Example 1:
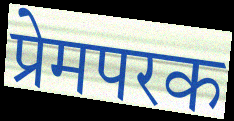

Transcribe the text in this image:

प्रेमपरक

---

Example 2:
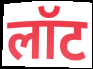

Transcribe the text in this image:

लॉट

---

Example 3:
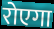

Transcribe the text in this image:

रोएगा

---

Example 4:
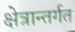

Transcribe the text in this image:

क्षेत्रान्तर्गत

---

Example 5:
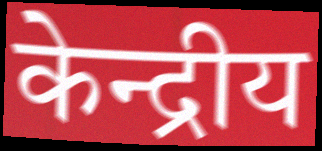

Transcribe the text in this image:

केन्‍द्रीय